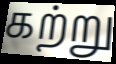
கற்று